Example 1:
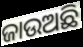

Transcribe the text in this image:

ଜାଉଅଛି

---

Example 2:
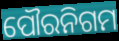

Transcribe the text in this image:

ପୌରନିଗମ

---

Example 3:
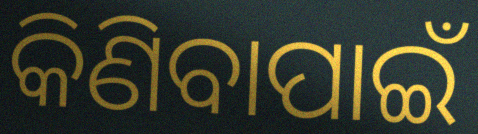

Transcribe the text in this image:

କିଣିବାପାଇଁ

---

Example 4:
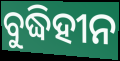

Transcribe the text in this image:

ବୁଦ୍ଧିହୀନ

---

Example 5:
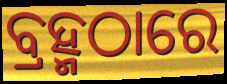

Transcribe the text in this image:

ବ୍ରହ୍ମଠାରେ